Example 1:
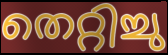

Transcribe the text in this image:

തെറ്റിച്ചു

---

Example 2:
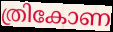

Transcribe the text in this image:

ത്രികോണ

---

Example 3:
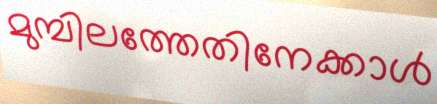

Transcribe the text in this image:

മുമ്പിലത്തേതിനേക്കാൾ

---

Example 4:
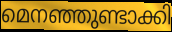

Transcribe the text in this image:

മെനഞ്ഞുണ്ടാക്കി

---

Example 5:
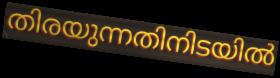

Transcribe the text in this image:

തിരയുന്നതിനിടയിൽ